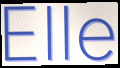
Elle